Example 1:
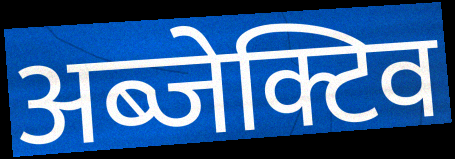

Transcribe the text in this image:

अब्जेक्टिव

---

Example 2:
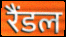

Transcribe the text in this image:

रैंडल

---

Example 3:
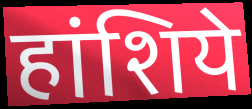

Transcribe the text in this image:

हांशिये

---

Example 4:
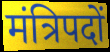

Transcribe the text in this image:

मंत्रिपदों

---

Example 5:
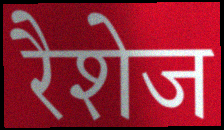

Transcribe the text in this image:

रैशेज